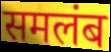
समलंब